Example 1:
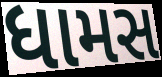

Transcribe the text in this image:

ધામસ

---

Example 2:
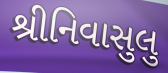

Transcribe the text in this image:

શ્રીનિવાસુલુ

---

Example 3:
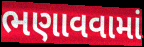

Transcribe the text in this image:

ભણાવવામાં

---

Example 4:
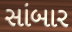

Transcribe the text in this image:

સાંબાર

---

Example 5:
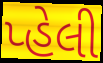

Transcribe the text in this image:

પ્હેલી